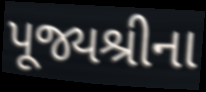
પૂજ્યશ્રીના